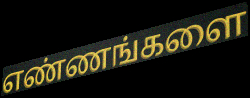
எண்ணங்களை